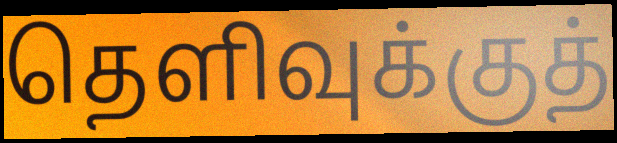
தெளிவுக்குத்